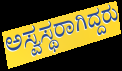
ಅಸ್ವಸ್ಥರಾಗಿದ್ದರು